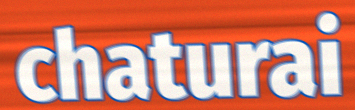
chaturai